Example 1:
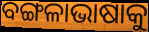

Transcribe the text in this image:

ବଙ୍ଗଳାଭାଷାକୁ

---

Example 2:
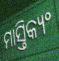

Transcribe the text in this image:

ମାସ୍ତିକ୍ୟଂ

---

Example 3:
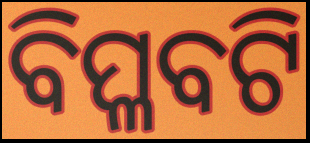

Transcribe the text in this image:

ବିପ୍ଳବଟି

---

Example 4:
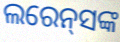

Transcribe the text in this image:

ଲରେନ୍‌ସଙ୍କ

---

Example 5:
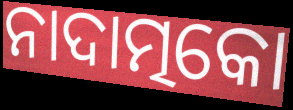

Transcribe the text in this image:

ନାଦାତ୍ମକୋ